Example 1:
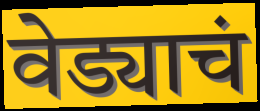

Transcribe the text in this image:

वेड्याचं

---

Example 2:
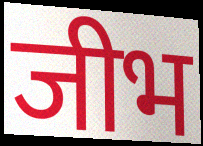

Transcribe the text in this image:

जीभ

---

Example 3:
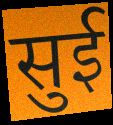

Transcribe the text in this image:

सुई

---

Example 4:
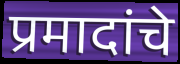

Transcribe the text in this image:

प्रमादांचे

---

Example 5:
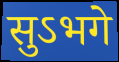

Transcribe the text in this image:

सुऽभगे